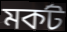
মর্কট